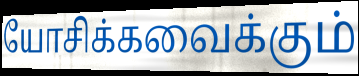
யோசிக்கவைக்கும்